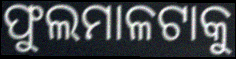
ଫୁଲମାଳଟାକୁ